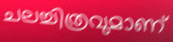
ചലച്ചിത്രവുമാണ്